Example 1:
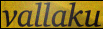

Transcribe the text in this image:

vallaku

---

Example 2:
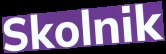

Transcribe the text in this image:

Skolnik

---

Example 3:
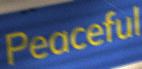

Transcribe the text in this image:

Peaceful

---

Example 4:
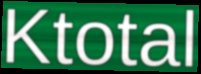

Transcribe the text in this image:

Ktotal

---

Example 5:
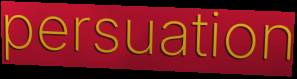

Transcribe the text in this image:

persuation